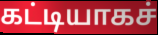
கட்டியாகச்